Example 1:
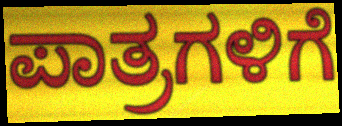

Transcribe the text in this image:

ಪಾತ್ರಗಳಿಗೆ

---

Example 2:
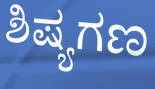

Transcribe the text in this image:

ಶಿಷ್ಯಗಣ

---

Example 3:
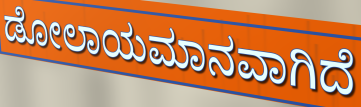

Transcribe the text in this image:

ಡೋಲಾಯಮಾನವಾಗಿದೆ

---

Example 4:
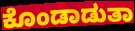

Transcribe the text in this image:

ಕೊಂಡಾಡುತಾ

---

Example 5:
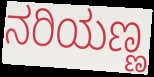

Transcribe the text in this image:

ನರಿಯಣ್ಣ